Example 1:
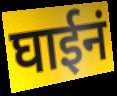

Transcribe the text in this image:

घाईनं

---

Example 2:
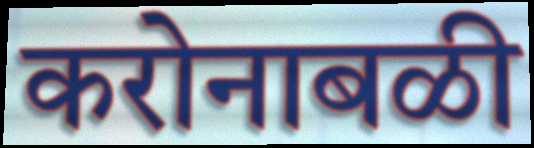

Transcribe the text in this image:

करोनाबळी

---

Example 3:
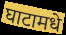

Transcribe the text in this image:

घाटामधे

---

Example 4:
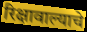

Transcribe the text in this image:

रिक्षावाल्याचे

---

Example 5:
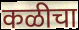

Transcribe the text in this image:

कळीचा